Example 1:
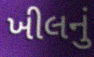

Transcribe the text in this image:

ખીલનું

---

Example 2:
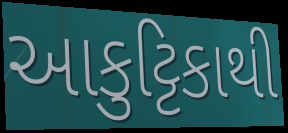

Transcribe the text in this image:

આકુટ્ટિકાથી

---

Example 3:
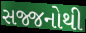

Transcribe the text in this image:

સજ્જનોથી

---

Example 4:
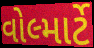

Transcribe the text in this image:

વોલ્માર્ટે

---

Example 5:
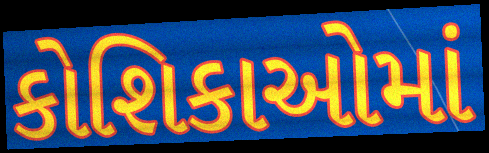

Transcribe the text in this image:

કોશિકાઓમાં